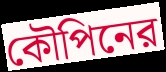
কৌপিনের